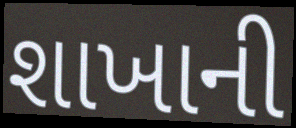
શાખાની